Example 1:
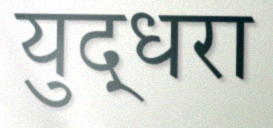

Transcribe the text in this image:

युद्धरा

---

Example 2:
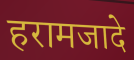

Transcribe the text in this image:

हरामजादे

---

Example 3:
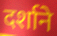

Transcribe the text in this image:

दर्शाने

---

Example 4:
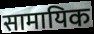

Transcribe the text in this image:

सामायिक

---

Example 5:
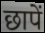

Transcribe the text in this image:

छापें